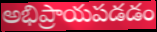
అభిప్రాయపడడం